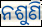
ନଶୁଣି